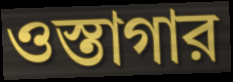
ওস্তাগার